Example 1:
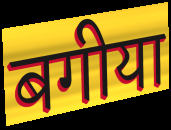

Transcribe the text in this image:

बगीया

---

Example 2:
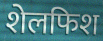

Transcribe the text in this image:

शेलफिश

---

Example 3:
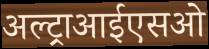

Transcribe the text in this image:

अल्ट्राआईएसओ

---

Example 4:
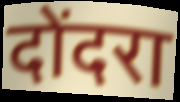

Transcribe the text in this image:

दोंदरा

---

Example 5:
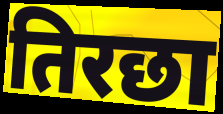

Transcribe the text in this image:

तिरछा